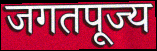
जगतपूज्य